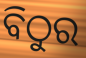
ବିଠୁର